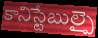
కానిస్టేబుల్పై